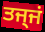
ਤਜ੍ਜਂ